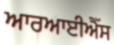
ਆਰਆਈਐੱਸ